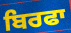
ਬਿਰਫਾ